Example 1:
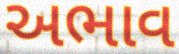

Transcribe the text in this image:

અભાવ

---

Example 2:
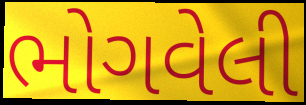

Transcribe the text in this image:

ભોગવેલી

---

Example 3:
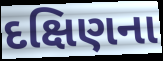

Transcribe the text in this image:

દક્ષિણના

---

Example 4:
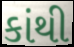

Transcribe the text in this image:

કાંથી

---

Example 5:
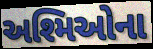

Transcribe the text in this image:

અશ્મિઓના